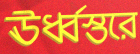
ঊর্ধ্বস্তরে